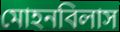
মোহনবিলাস